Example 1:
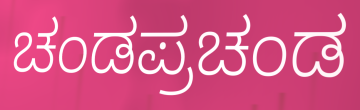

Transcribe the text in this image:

ಚಂಡಪ್ರಚಂಡ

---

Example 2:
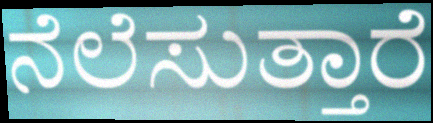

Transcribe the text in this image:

ನೆಲೆಸುತ್ತಾರೆ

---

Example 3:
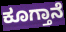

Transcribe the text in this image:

ಕೂಗ್ತಾನೆ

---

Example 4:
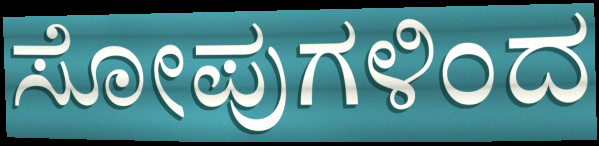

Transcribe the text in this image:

ಸೋಪುಗಳಿಂದ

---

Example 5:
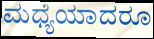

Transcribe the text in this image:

ಮಧ್ಯೆಯಾದರೂ